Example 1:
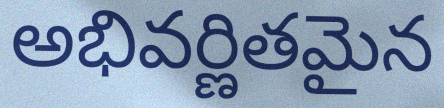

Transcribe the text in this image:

అభివర్ణితమైన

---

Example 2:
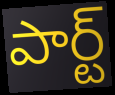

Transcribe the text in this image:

పార్ట్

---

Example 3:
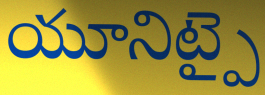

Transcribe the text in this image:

యూనిట్పై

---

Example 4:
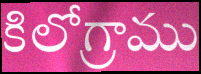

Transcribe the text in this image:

కిలోగ్రాము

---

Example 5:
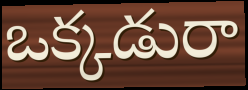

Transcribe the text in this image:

ఒక్కడురా